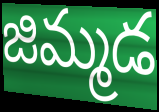
జిమ్మడ